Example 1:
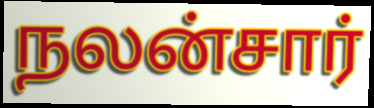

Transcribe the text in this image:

நலன்சார்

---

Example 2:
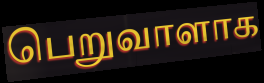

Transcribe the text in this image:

பெறுவாளாக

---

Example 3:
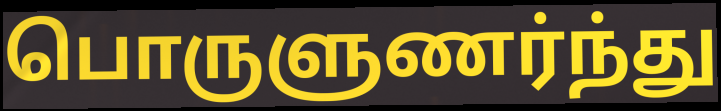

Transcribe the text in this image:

பொருளுணர்ந்து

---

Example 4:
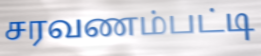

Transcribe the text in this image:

சரவணம்பட்டி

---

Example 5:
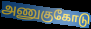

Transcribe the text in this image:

அணுகுகோடு